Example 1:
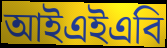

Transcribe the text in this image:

আইএইএবি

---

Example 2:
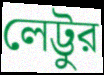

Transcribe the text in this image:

লেট্টুর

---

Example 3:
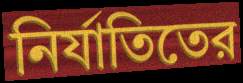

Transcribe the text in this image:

নির্যাতিতের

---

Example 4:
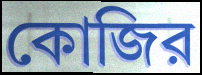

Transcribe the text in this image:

কোজির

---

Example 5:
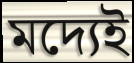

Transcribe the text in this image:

মদ্যেই